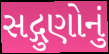
સદ્ગુણોનું